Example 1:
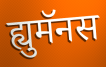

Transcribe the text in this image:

ह्युमॅनस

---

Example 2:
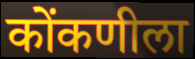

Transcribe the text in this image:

कोंकणीला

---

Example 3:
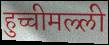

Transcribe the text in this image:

हुच्चीमल्ली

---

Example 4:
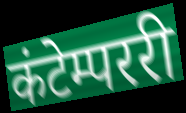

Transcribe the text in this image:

कंटेम्पररी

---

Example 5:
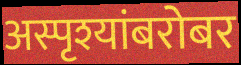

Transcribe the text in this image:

अस्पृश्यांबरोबर